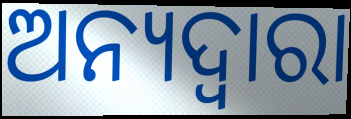
ଅନ୍ୟଦ୍ୱାରା